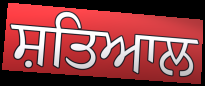
ਸ਼ਤਿਆਲ